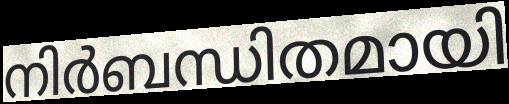
നിർബന്ധിതമായി